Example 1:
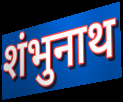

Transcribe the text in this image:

शंभुनाथ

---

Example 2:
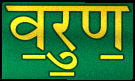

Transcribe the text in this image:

व॒रु॒ण॒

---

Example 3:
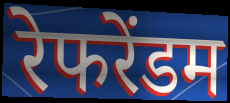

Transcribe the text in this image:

रेफरेंडम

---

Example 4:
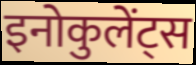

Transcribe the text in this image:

इनोकुलेंट्स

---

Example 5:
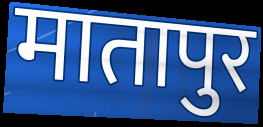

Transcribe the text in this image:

मातापुर